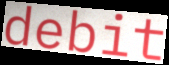
debit